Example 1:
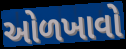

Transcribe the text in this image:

ઓળખાવો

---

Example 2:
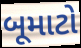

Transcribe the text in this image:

બૂમાટો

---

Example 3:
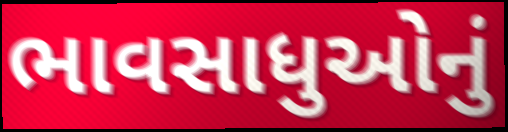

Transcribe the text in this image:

ભાવસાધુઓનું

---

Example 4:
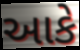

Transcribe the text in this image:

આકે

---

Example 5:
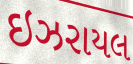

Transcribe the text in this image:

ઇઝરાયલ